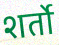
शर्तो